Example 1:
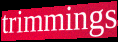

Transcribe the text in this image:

trimmings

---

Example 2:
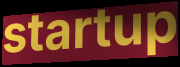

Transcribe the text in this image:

startup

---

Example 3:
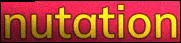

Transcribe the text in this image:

nutation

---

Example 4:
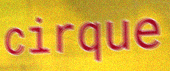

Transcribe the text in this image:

cirque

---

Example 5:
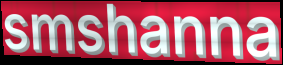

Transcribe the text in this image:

smshanna